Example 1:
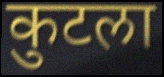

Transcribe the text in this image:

कुटला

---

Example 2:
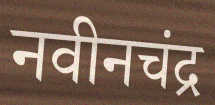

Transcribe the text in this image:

नवीनचंद्र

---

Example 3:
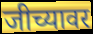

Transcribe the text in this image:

जीच्यावर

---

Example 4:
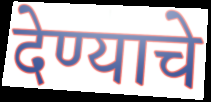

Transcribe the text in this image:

देण्याचे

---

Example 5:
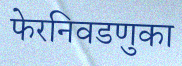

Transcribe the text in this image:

फेरनिवडणुका